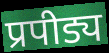
प्रपीड्य